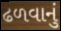
ઢળવાનું